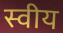
स्वीय